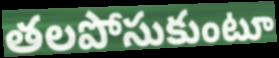
తలపోసుకుంటూ